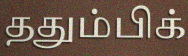
ததும்பிக்